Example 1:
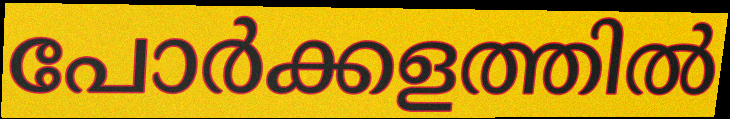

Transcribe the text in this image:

പോർക്കളത്തിൽ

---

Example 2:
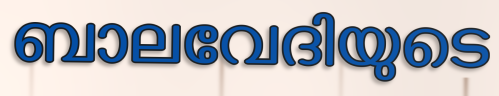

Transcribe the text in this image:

ബാലവേദിയുടെ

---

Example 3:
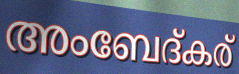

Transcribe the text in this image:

അംബേദ്കര്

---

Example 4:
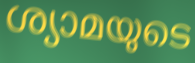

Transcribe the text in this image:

ശ്യാമയുടെ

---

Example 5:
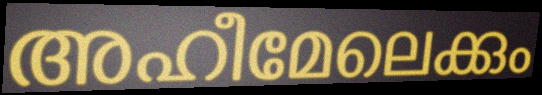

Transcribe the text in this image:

അഹീമേലെക്കും